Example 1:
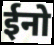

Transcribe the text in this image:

ईनो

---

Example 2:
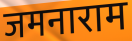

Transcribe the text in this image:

जमनाराम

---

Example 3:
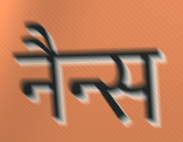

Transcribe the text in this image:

नैन्स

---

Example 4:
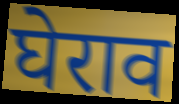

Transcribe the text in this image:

घेराव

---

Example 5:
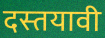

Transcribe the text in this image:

दस्तयावी